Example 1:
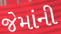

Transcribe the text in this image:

જેમાંની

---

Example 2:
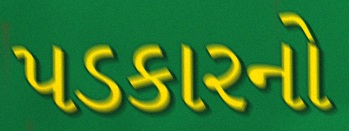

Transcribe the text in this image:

પડકારનો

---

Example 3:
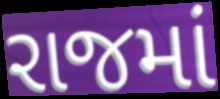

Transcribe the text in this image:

રાજમાં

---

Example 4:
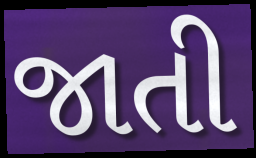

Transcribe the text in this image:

જાતી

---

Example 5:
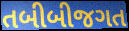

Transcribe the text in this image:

તબીબીજગત